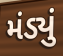
મંડ્યું